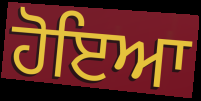
ਹੋਇਆ